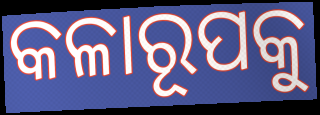
କଳାରୂପକୁ